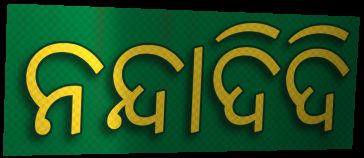
ନନ୍ଦାଦିଦି